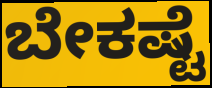
ಬೇಕಷ್ಟೆ